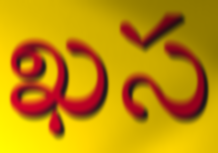
ఖస